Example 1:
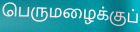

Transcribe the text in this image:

பெருமழைக்குப்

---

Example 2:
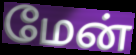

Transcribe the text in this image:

மேன்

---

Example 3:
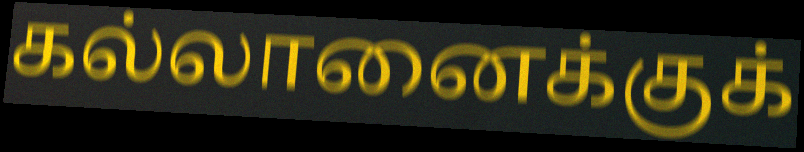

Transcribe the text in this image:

கல்லானைக்குக்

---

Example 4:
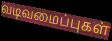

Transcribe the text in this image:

வடிவமைப்புகள்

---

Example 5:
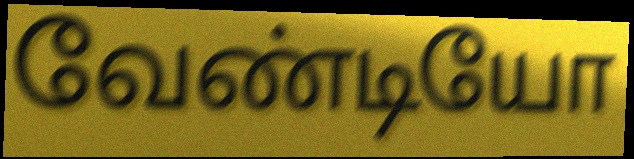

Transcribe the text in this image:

வேண்டியோ